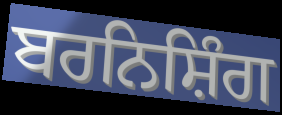
ਬਰਨਿਸ਼ਿੰਗ